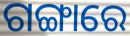
ଗଙ୍ଗାରେ